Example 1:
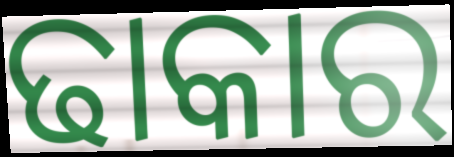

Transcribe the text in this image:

ଢାକାର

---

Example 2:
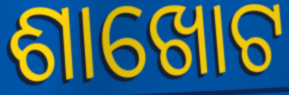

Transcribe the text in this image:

ଶାଖୋଟ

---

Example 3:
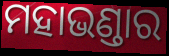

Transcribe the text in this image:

ମହାଭଣ୍ଡାର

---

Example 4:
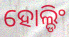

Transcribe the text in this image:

ହୋଲ୍ଡିଂ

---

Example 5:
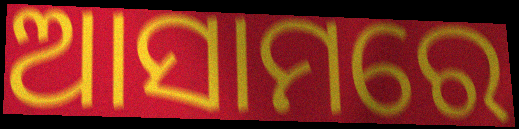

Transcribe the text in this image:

ଆସାମରେ